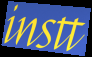
instt